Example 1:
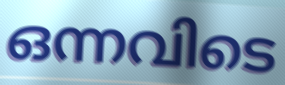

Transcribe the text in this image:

ഒന്നവിടെ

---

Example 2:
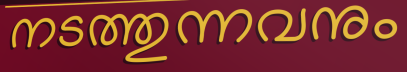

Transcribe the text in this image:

നടത്തുന്നവനും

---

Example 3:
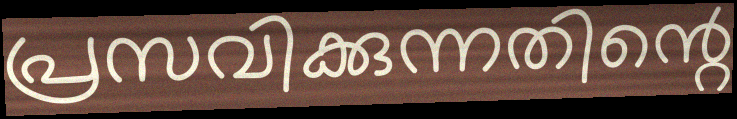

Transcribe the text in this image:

പ്രസവിക്കുന്നതിന്റെ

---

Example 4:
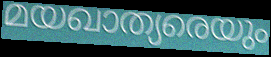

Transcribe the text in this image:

മയഖാത്യരെയും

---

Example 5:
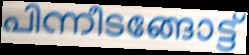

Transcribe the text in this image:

പിന്നീടങ്ങോട്ട്